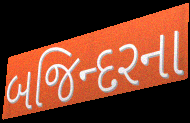
બજિન્દરના